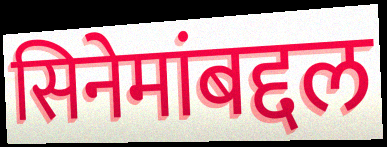
सिनेमांबद्दल